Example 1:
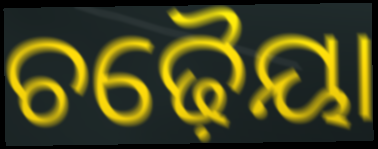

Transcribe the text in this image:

ଚଢ଼ୈୟା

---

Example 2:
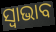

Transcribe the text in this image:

ସ୍ୱାଭାବ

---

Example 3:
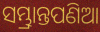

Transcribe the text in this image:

ସମ୍ଭ୍ରାନ୍ତପଣିଆ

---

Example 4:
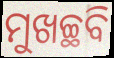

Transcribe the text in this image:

ମୁଖଚ୍ଛବି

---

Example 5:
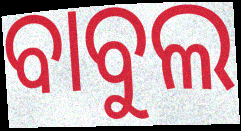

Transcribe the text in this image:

ବାବୁଲ